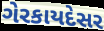
ગેરકાયદેસર